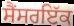
ਸੈਂਸਰਇੱਕ